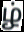
ழ்